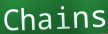
Chains